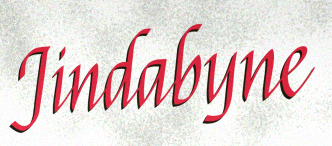
Jindabyne